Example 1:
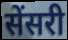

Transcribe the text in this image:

सेंसरी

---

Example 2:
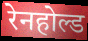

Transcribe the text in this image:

रेनहोल्ड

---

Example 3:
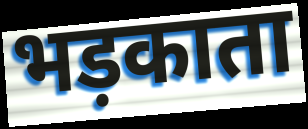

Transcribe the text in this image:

भड़काता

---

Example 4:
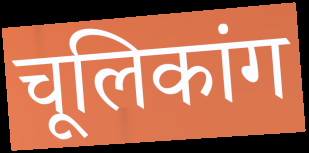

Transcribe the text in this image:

चूलिकांग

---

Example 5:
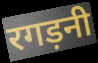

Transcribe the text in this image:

रगड़नी